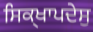
ਸਿਕ੍ਖਾਪਦੇਸੁ